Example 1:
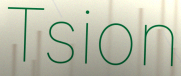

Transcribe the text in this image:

Tsion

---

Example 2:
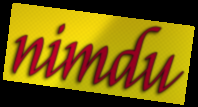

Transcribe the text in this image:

nimdu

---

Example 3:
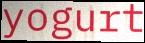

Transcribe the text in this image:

yogurt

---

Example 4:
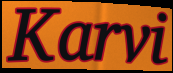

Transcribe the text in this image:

Karvi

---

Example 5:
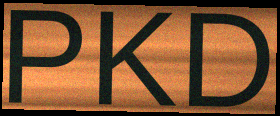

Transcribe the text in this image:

PKD